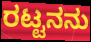
ರಟ್ಟನನು